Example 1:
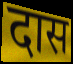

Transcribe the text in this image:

दास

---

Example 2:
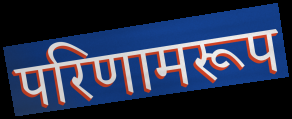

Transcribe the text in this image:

परिणामरूप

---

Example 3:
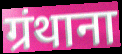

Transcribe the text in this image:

ग्रंथाना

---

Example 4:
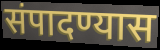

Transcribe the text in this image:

संपादण्यास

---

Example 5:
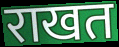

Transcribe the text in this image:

राखत